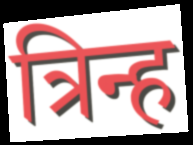
त्रिन्ह